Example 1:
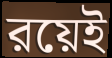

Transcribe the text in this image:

রয়েই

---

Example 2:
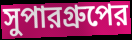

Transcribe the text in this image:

সুপারগ্রুপের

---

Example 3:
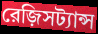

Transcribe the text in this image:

রেজ়িসট্যান্স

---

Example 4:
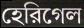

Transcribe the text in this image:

হেরিগেল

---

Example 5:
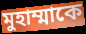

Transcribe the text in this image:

মুহাম্মাকে